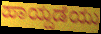
ಹಾಯ್ದಡೆಯು